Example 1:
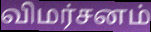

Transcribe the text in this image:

விமர்சனம்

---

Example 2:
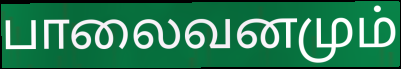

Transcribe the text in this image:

பாலைவனமும்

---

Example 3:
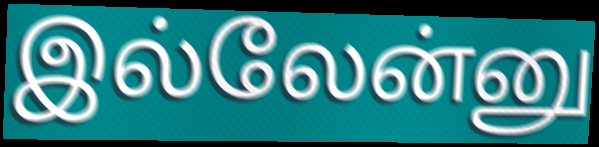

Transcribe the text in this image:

இல்லேன்னு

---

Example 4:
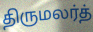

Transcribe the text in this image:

திருமலர்த்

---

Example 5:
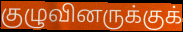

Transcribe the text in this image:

குழுவினருக்குக்